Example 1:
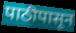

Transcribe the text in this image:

पाठीपासून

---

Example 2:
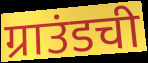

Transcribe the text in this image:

ग्राउंडची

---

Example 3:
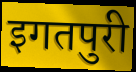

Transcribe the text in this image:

इगतपुरी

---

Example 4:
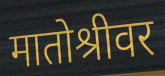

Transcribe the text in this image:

मातोश्रीवर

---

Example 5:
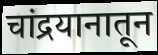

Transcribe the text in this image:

चांद्रयानातून